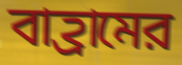
বাহ্রামের